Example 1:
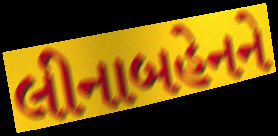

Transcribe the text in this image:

લીનાબહેનને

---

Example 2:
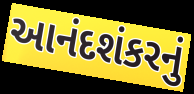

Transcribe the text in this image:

આનંદશંકરનું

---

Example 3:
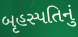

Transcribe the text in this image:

બૃહસ્પતિનું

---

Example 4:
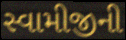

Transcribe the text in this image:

સ્વામીજીની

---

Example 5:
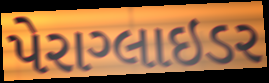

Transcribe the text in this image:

પેરાગ્લાઇડર